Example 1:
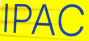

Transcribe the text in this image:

IPAC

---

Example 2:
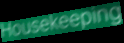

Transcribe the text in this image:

Housekeeping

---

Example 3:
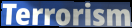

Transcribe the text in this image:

Terrorism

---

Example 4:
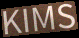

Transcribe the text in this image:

KIMS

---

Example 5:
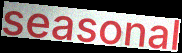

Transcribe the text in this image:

seasonal